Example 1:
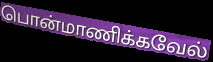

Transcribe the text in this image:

பொன்மாணிக்கவேல்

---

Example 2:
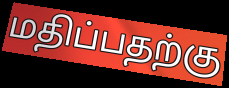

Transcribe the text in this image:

மதிப்பதற்கு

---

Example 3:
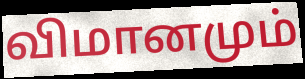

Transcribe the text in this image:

விமானமும்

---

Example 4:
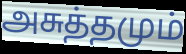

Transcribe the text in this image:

அசுத்தமும்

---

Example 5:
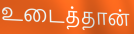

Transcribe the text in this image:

உடைத்தான்